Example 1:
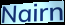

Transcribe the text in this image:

Nairn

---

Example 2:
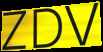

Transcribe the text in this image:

ZDV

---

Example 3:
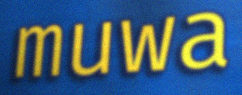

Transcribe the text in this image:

muwa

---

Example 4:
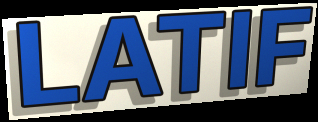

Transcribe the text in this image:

LATIF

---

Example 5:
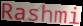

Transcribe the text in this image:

Rashmi